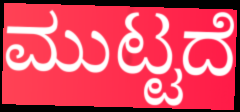
ಮುಟ್ಟದೆ